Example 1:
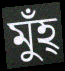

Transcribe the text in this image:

মুঁহ্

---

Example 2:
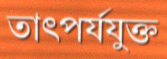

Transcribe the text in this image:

তাৎপর্যযুক্ত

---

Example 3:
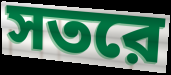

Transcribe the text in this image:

সতরে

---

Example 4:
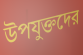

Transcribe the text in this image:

উপযুক্তদের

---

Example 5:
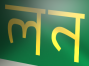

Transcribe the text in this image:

লন